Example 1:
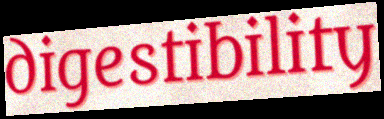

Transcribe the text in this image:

digestibility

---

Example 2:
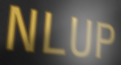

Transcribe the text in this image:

NLUP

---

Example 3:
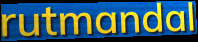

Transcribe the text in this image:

rutmandal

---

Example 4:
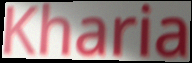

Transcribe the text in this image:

Kharia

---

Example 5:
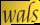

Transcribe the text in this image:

wals